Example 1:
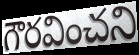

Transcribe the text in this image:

గౌరవించని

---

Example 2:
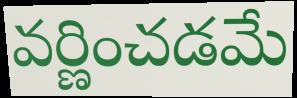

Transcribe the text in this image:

వర్ణించడమే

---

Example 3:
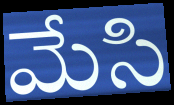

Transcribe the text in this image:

మేసి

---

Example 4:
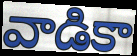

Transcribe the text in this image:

వాడికా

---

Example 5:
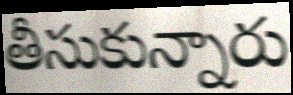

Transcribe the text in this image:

తీసుకున్నారు